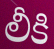
లీకి